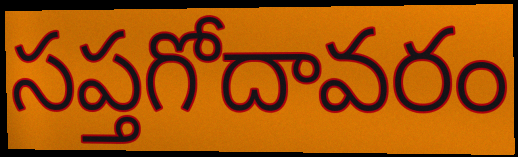
సప్తగోదావరం